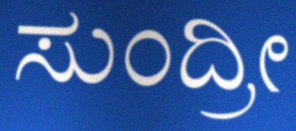
ಸುಂದ್ರೀ